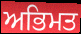
ਅਭਿਮਤ